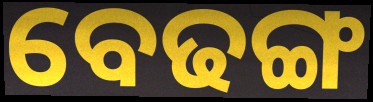
ବେଢଙ୍ଗ